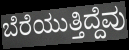
ಬೆರೆಯುತ್ತಿದ್ದೆವು